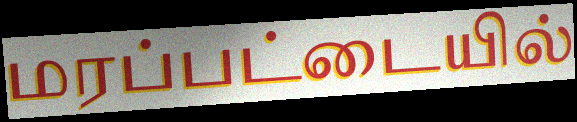
மரப்பட்டையில்